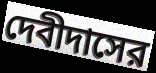
দেবীদাসের